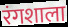
रंगशाला